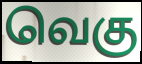
வெகு